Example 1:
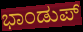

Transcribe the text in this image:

ಭಾಂಡುಪ್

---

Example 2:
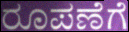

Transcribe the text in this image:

ರೂಪಣೆಗೆ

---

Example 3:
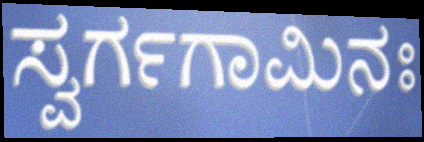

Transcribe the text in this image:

ಸ್ವರ್ಗಗಾಮಿನಃ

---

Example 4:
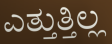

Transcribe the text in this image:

ಎತ್ತುತ್ತಿಲ್ಲ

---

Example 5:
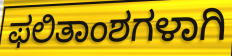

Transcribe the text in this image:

ಫಲಿತಾಂಶಗಳಾಗಿ